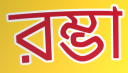
রম্ভা